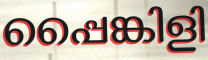
പ്പൈങ്കിളി